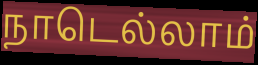
நாடெல்லாம்